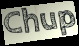
Chup